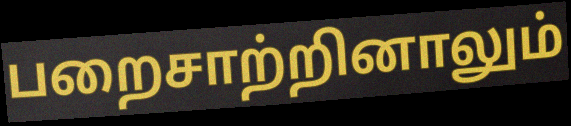
பறைசாற்றினாலும்